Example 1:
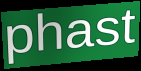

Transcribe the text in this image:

phast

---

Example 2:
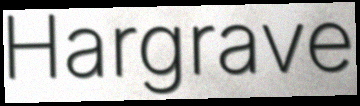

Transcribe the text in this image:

Hargrave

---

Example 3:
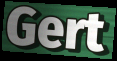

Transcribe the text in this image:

Gert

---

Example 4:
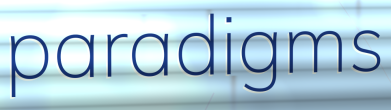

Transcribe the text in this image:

paradigms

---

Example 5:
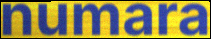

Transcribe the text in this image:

numara